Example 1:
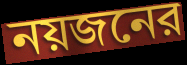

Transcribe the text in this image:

নয়জনের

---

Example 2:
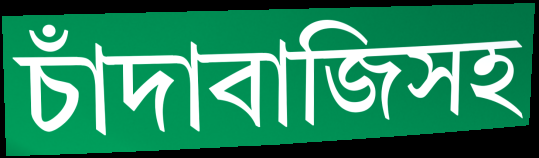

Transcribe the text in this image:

চাঁদাবাজিসহ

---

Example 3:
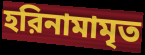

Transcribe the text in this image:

হরিনামামৃত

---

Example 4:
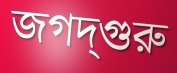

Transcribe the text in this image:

জগদ্‌গুরু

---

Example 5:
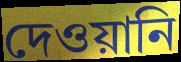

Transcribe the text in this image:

দেওয়ানি